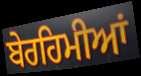
ਬੇਰਹਿਮੀਆਂ